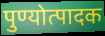
पुण्योत्पादक